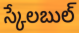
స్కేలబుల్